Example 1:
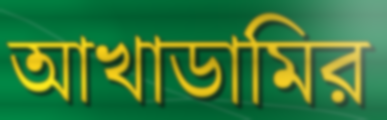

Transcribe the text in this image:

আখাডামির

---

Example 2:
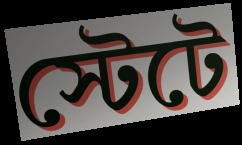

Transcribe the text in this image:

স্টেটে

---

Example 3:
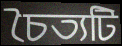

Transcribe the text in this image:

চৈত্যটি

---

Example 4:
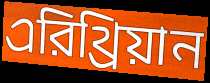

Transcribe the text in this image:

এরিথ্রিয়ান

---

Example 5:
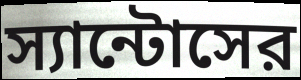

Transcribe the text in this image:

স্যান্টোসের